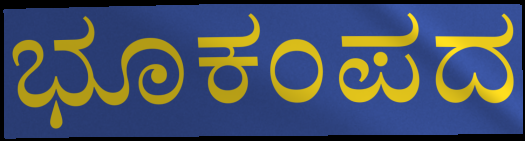
ಭೂಕಂಪದ